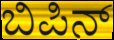
ಬಿಪಿನ್